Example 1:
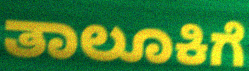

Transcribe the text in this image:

ತಾಲೂಕಿಗೆ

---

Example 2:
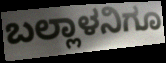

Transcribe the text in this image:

ಬಲ್ಲಾಳನಿಗೂ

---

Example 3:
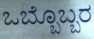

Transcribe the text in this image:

ಒಬ್ಬೊಬ್ಬರ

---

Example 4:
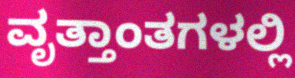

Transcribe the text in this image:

ವೃತ್ತಾಂತಗಳಲ್ಲಿ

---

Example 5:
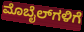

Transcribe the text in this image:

ಮೊಬೈಲ್‌ಗಳಿಗೆ